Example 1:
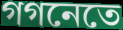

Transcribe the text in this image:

গগনেতে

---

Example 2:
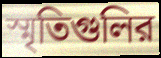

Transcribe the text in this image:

স্মৃতিগুলির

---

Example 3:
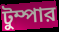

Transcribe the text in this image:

টুম্পার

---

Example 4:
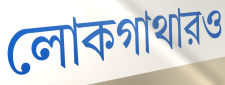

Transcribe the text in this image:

লোকগাথারও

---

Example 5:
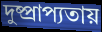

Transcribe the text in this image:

দুষ্প্রাপ্যতায়